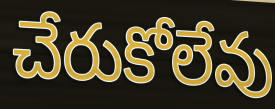
చేరుకోలేవు